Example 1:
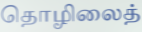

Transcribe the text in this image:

தொழிலைத்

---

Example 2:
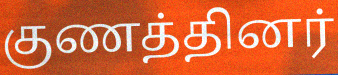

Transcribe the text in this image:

குணத்தினர்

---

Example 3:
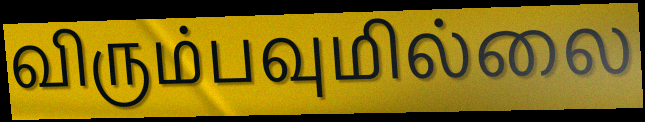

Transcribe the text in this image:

விரும்பவுமில்லை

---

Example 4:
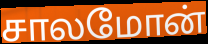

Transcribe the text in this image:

சாலமோன்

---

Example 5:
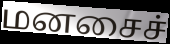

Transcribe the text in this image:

மனசைச்